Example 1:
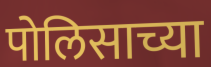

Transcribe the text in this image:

पोलिसाच्या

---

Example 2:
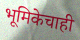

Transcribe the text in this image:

भूमिकेचाही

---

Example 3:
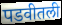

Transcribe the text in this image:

पडवीतली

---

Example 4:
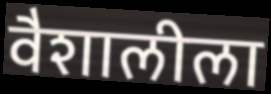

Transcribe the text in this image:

वैशालीला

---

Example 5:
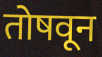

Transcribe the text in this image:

तोषवून